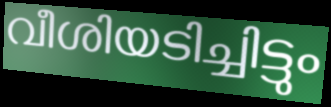
വീശിയടിച്ചിട്ടും